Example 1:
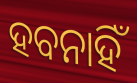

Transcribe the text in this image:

ହବନାହିଁ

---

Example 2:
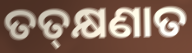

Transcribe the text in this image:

ତତ୍‌କ୍ଷଣାତ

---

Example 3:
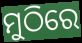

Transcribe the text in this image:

ମୁଠିରେ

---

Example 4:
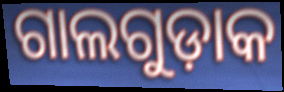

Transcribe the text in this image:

ଗାଲଗୁଡ଼ାକ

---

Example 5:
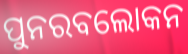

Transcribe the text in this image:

ପୁନରବଲୋକନ